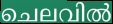
ചെലവിൽ